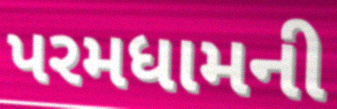
પરમધામની